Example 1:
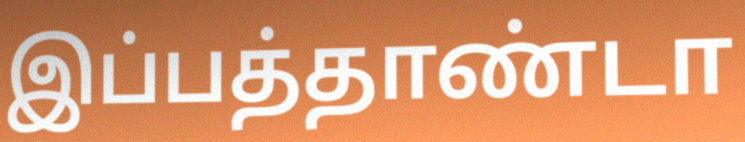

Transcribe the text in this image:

இப்பத்தாண்டா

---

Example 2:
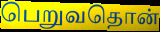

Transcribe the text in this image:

பெறுவதொன்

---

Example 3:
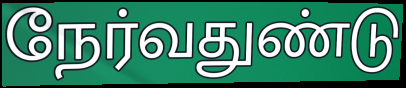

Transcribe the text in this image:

நேர்வதுண்டு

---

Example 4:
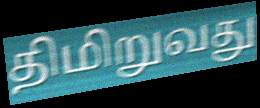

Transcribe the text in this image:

திமிறுவது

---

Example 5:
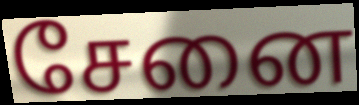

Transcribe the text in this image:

சேனை